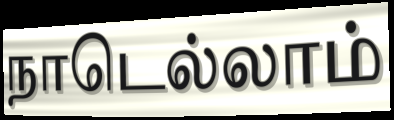
நாடெல்லாம்